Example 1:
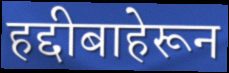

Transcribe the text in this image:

हद्दीबाहेरून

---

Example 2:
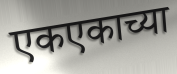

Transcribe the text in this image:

एकएकाच्या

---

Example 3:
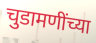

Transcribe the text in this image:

चुडामणींच्या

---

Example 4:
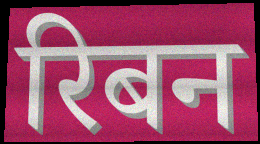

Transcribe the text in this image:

रिबन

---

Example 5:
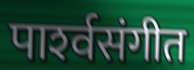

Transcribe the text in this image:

पार्श्‍वसंगीत